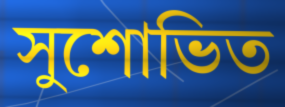
সুশোভিত